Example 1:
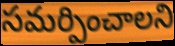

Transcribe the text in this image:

సమర్పించాలని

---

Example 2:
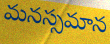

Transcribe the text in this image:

మనస్సమాన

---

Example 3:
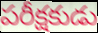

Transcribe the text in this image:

పరీక్షకుడు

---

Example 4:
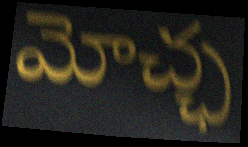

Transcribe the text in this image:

మోచ్ఛ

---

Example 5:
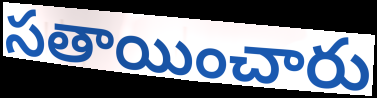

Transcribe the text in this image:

సతాయించారు